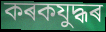
কৰকযুদ্ধৰ